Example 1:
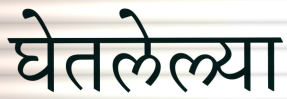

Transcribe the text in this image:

घेतलेल्या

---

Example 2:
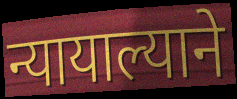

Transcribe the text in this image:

न्यायाल्याने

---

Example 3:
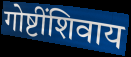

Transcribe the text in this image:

गोष्टींशिवाय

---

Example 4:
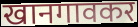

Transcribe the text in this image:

खानगावकर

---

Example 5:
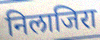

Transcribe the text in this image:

निलाजिरा